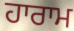
ਹਾਰਾਮ